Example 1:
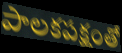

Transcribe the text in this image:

పాలకపక్షంతో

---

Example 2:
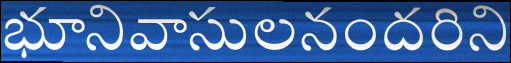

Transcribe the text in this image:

భూనివాసులనందరిని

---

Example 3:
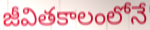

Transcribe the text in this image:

జీవితకాలంలోనే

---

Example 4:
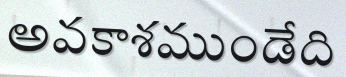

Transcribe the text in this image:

అవకాశముండేది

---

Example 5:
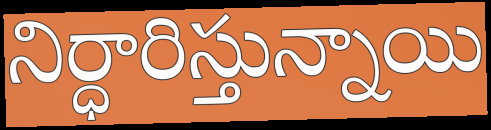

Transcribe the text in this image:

నిర్ధారిస్తున్నాయి